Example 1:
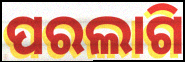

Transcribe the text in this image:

ପରଲାଗି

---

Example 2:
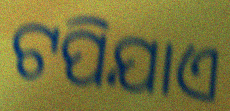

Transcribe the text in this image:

ଟପିଯାଏ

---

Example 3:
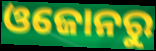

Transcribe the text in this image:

ଓଜୋନରୁ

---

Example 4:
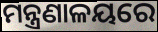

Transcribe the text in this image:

ମନ୍ତ୍ରଣାଳୟରେ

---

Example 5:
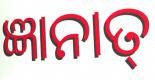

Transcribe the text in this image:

ଜ୍ଞାନାତ୍